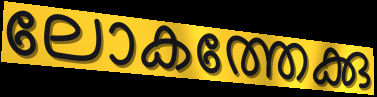
ലോകത്തേക്കു